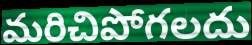
మరిచిపోగలదు